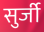
सुर्जी